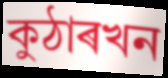
কুঠাৰখন